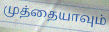
முத்தையாவும்